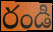
రండి